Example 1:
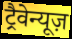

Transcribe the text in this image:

ट्रैवेन्यूज़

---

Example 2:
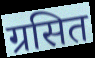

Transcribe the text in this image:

ग्रसित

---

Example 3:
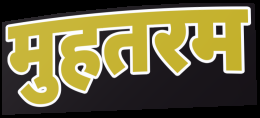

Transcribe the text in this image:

मुहतरम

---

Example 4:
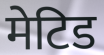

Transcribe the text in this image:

मेटिड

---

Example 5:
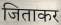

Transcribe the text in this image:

जिताकर